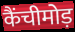
कैंचीमोड़